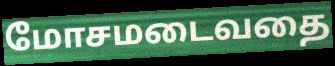
மோசமடைவதை